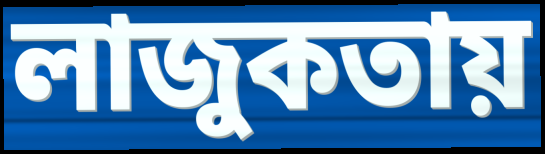
লাজুকতায়